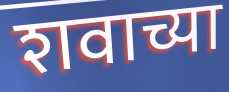
शवाच्या